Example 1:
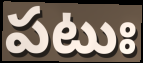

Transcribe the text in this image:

పటుః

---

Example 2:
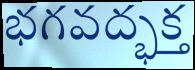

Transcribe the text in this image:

భగవద్భక్త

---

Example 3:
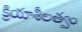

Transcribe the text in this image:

క్రియాశీలత్వం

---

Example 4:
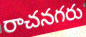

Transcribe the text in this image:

రాచనగరు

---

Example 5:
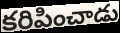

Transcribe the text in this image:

కరిపించాడు